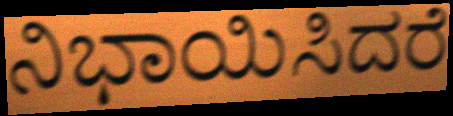
ನಿಭಾಯಿಸಿದರೆ